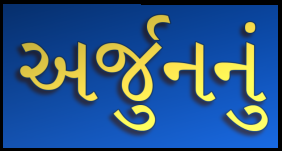
અર્જુનનું